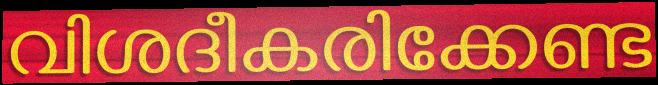
വിശദീകരിക്കേണ്ട